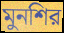
মুনশির